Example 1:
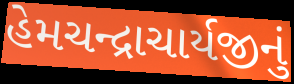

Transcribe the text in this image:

હેમચન્દ્રાચાર્યજીનું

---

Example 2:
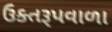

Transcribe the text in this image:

ઉક્તરૂપવાળા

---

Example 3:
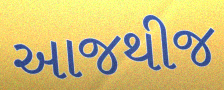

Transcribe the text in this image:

આજથીજ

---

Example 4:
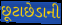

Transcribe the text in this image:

છૂટાછેડાની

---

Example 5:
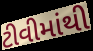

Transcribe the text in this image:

ટીવીમાંથી